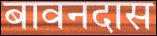
बावनदास